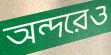
অন্দরেও